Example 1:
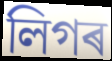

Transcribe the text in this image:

লিগৰ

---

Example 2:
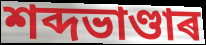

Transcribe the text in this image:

শব্দভাণ্ডাৰ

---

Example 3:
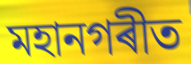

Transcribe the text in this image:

মহানগৰীত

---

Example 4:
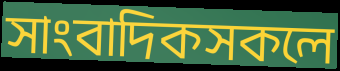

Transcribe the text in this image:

সাংবাদিকসকলে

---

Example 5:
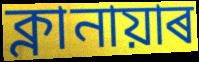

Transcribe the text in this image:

ক্নানায়াৰ